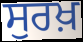
ਸੁਰਖ਼